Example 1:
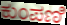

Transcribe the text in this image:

ಕುಂಪಣಿ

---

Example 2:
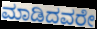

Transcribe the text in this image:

ಮಾಡಿದವರೇ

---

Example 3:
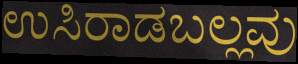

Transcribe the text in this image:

ಉಸಿರಾಡಬಲ್ಲವು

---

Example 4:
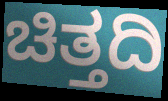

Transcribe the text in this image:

ಚಿತ್ತದಿ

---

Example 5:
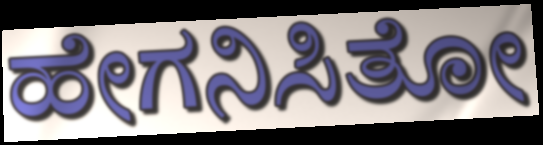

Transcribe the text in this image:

ಹೇಗನಿಸಿತೋ